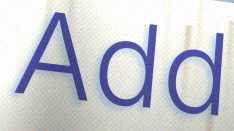
Add